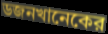
ডজনখানেকের